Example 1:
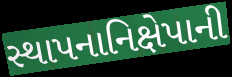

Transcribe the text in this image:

સ્થાપનાનિક્ષેપાની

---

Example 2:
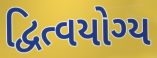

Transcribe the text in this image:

દ્વિત્વયોગ્ય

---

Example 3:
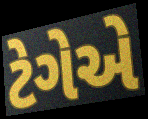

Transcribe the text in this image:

ટેગેએ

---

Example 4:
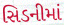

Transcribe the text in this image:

સિડનીમાં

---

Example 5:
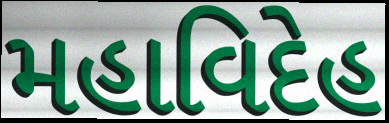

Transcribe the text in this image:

મહાવિદેહ